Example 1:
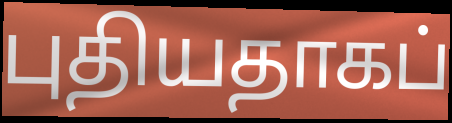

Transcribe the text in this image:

புதியதாகப்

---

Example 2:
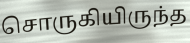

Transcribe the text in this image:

சொருகியிருந்த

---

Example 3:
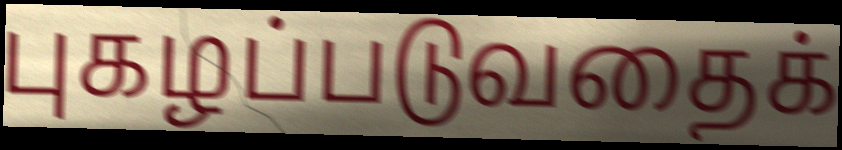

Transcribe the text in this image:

புகழப்படுவதைக்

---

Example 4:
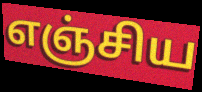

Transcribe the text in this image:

எஞ்சிய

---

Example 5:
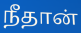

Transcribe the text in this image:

நீதான்